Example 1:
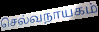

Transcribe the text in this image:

செல்வநாயகம்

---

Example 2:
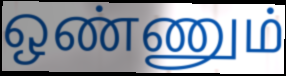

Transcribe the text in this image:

ஒண்ணும்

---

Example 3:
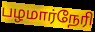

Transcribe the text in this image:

பழமார்நேரி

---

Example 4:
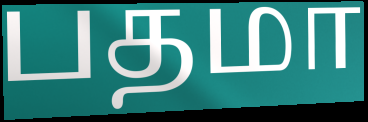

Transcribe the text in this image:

பதமா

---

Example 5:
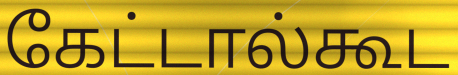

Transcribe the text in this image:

கேட்டால்கூட